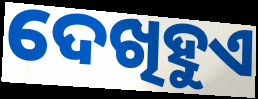
ଦେଖିହୁଏ